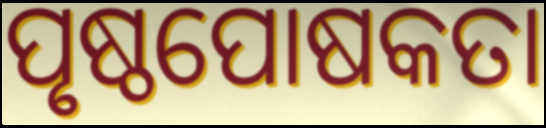
ପୃଷ୍ଠପୋଷକତା